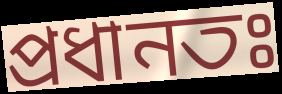
প্রধানতঃ